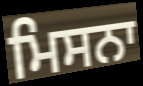
ਮਿਸਨਾ